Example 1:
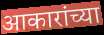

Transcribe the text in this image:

आकारांच्या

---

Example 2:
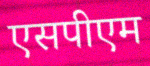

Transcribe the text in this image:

एसपीएम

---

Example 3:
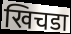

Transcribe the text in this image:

खिचडा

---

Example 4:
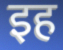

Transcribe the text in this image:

इह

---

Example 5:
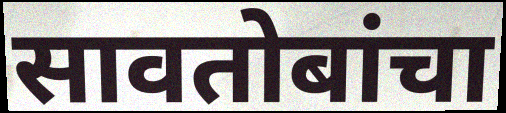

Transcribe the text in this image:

सावतोबांचा